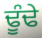
ਢੂੰਢੇ